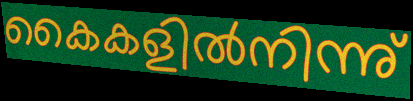
കൈകളിൽനിന്നു്